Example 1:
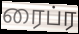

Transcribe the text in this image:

ரைப்ர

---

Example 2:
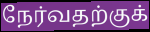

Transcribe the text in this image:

நேர்வதற்குக்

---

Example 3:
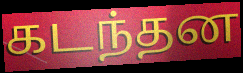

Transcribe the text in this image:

கடந்தன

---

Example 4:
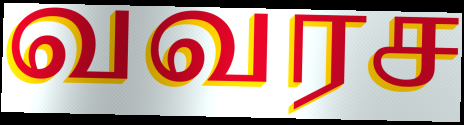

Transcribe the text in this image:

வவரச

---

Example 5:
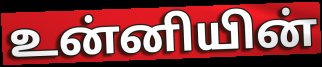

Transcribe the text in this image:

உன்னியின்